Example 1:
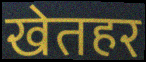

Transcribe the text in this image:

खेतहर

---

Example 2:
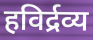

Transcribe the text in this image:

हविर्द्रव्य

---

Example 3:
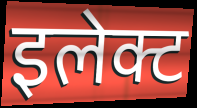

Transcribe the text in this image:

इलेक्ट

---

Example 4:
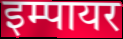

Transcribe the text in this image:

इम्पायर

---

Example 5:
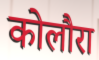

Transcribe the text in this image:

कोलौरा